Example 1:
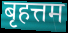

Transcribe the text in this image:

बृहत्तम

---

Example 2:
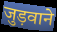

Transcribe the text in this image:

जुड़वाने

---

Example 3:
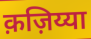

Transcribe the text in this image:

क़ज़िय्या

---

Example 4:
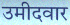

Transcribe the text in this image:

उमीदवार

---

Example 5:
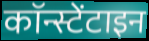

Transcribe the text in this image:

कॉन्स्टेंटाइन